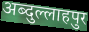
अब्दुल्लाहपुर